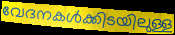
വേദനകൾക്കിടയിലുള്ള